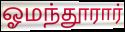
ஓமந்தூரார்